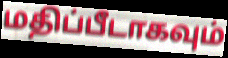
மதிப்பீடாகவும்